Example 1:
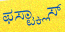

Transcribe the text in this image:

ಫಸ್ಟ್ಕ್ಲಾಸ್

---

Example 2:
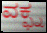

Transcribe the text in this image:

ವಕ್ಫ್ನ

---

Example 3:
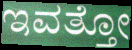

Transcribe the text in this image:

ಇವತ್ತೋ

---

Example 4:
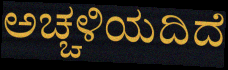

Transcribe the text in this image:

ಅಚ್ಚಳಿಯದಿದೆ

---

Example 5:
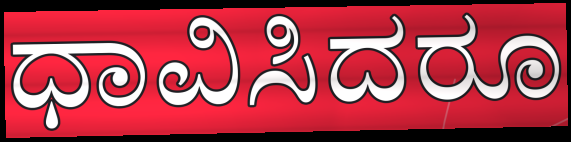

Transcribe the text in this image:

ಧಾವಿಸಿದರೂ